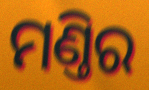
ମଣ୍ତିର